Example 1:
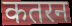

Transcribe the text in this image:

कतरन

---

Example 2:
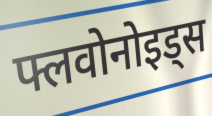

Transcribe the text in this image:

फ्लवोनोइड्स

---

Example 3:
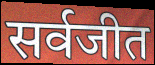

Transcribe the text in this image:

सर्वजीत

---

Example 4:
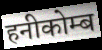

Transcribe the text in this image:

हनीकोम्ब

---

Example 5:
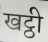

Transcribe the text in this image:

खट्ठी